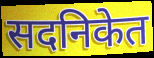
सदनिकेत